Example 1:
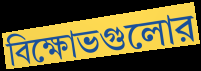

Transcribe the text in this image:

বিক্ষোভগুলোর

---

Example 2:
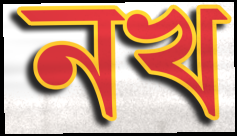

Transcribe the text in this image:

নখ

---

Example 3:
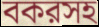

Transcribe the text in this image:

বকরসহ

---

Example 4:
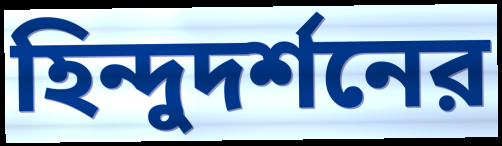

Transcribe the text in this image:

হিন্দুদর্শনের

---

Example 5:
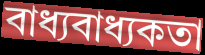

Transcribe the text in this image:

বাধ্যবাধ্যকতা